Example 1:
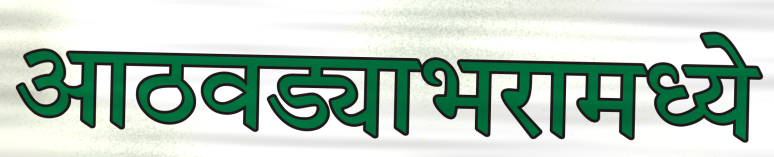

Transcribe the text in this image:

आठवड्याभरामध्ये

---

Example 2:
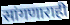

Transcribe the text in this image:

सांगणाराही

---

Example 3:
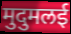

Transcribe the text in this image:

मुदुमलई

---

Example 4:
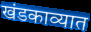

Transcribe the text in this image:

खंडकाव्यात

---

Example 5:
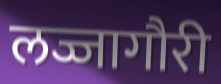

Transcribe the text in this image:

लज्जागौरी